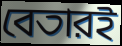
বেতারই